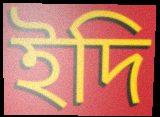
ইদি